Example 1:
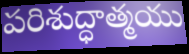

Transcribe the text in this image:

పరిశుద్ధాత్మయు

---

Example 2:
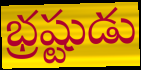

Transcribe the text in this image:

భ్రష్టుడు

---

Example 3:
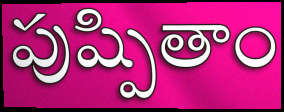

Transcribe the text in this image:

పుష్పితాం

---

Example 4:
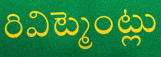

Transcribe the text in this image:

రివిట్మెంట్లు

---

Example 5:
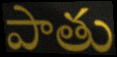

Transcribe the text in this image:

పాతు